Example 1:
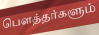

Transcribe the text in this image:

பௌத்தர்களும்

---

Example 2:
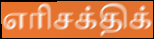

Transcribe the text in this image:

எரிசக்திக்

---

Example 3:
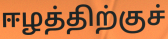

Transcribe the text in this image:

ஈழத்திற்குச்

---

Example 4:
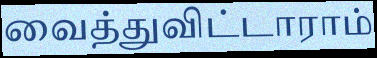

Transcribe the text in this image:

வைத்துவிட்டாராம்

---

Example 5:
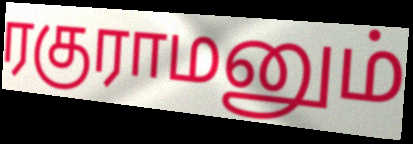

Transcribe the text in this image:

ரகுராமனும்